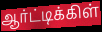
ஆர்ட்டிக்கிள்